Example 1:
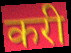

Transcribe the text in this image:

करी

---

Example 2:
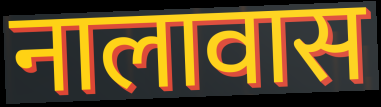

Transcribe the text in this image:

नालावास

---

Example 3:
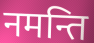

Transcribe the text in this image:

नमन्ति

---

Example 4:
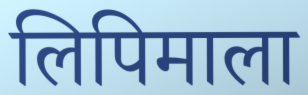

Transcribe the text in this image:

लिपिमाला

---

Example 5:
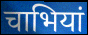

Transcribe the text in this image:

चाभियां